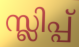
സ്ലിപ്പ്